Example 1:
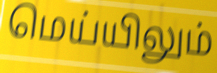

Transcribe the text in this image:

மெய்யிலும்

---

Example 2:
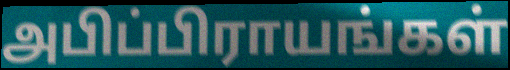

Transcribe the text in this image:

அபிப்பிராயங்கள்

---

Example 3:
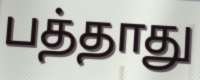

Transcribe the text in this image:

பத்தாது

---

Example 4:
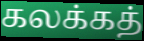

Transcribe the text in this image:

கலக்கத்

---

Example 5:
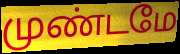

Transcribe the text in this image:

முண்டமே